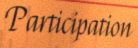
Participation